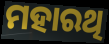
ମହାରଥି